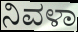
ನಿವಳಾ